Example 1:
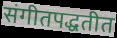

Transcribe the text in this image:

संगीतपद्धतीत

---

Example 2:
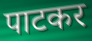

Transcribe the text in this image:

पाटकर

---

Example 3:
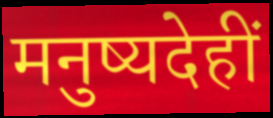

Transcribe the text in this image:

मनुष्यदेहीं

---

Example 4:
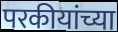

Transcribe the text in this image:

परकीयांच्या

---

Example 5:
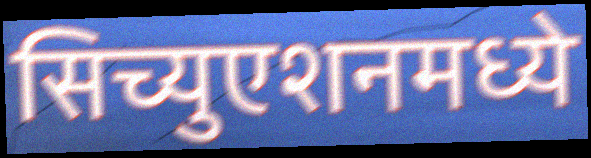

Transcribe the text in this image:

सिच्युएशनमध्ये